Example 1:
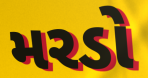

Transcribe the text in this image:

મરડો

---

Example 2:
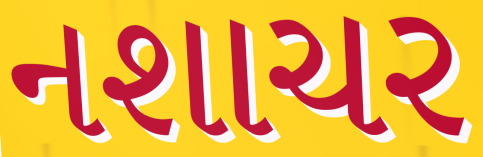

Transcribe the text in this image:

નશાચર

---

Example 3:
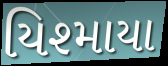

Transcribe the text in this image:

યિશ્માયા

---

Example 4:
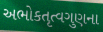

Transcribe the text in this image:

અભોકતૃત્વગુણના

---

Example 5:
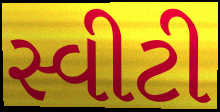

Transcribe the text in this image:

સ્વીટી